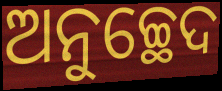
ଅନୁଚ୍ଛେଦ